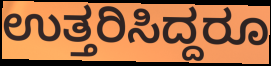
ಉತ್ತರಿಸಿದ್ದರೂ